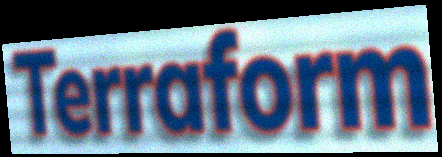
Terraform